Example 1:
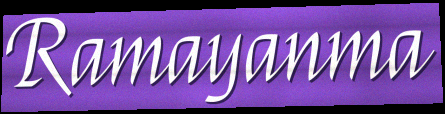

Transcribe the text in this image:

Ramayanma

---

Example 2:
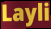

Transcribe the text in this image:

Layli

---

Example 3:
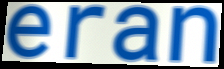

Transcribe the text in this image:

eran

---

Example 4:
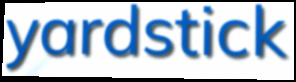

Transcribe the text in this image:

yardstick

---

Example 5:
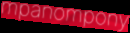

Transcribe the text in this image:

mpanompony